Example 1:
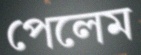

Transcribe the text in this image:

পেলেম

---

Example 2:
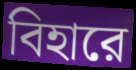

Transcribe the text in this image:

বিহারে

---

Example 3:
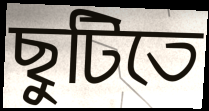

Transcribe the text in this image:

ছুটিতে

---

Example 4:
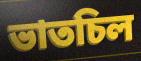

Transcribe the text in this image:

ভাতচিল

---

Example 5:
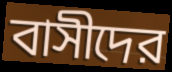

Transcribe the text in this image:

বাসীদের